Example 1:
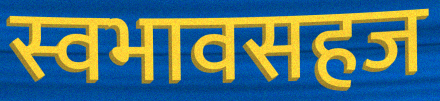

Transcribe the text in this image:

स्वभावसहज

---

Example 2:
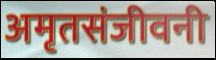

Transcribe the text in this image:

अमृतसंजीवनी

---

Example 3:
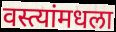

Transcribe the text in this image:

वस्त्यांमधला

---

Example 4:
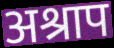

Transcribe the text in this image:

अश्राप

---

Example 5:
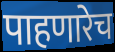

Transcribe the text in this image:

पाहणारेच